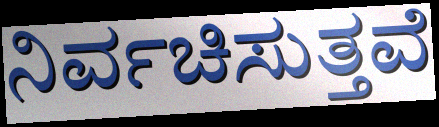
ನಿರ್ವಚಿಸುತ್ತವೆ